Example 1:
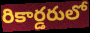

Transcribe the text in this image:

రికార్డరులో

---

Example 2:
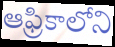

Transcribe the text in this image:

ఆఫ్రికాలోని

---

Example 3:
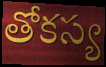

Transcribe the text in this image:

తోకస్య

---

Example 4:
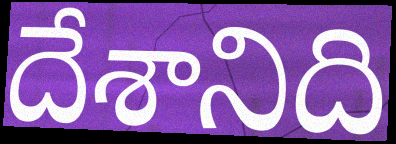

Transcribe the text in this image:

దేశానిది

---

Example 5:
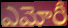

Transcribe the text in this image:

ఎమోరీ